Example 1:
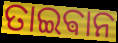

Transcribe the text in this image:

ତାଇଵାନ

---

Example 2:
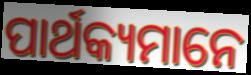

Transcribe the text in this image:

ପାର୍ଥକ୍ୟମାନେ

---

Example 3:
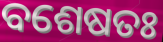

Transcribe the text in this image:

ବଶେଷତଃ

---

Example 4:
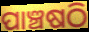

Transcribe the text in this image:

ପାଞ୍ଚଷଠି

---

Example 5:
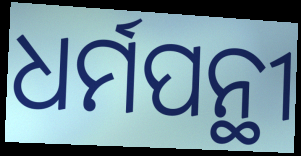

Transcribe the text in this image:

ଧର୍ମପନ୍ଥୀ